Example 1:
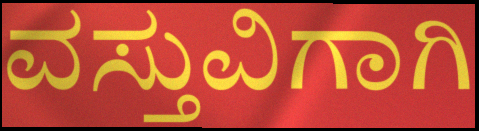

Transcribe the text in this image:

ವಸ್ತುವಿಗಾಗಿ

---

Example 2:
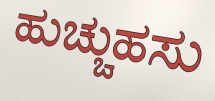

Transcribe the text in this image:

ಹುಚ್ಚುಹಸು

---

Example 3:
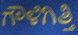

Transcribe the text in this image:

ಗೌಳಿಗಿತ್ತಿ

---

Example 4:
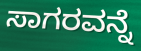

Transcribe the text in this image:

ಸಾಗರವನ್ನೆ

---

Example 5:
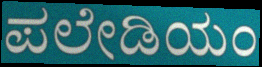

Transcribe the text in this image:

ಪಲೇಡಿಯಂ